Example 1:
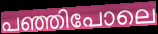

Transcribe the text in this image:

പഞ്ഞിപോലെ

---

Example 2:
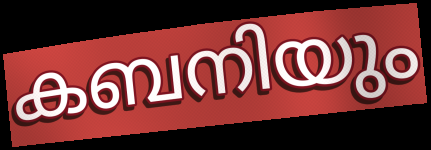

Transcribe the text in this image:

കബനിയും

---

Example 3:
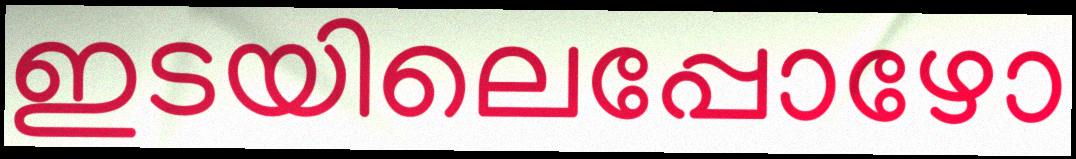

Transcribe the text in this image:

ഇടയിലെപ്പോഴോ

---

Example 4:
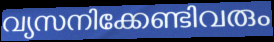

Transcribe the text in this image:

വ്യസനിക്കേണ്ടിവരും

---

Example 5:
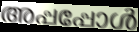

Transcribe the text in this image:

അപ്പപ്പോൾ